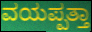
ವಯಪ್ಪತ್ತಾ